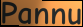
Pannu